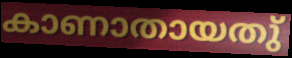
കാണാതായതു്